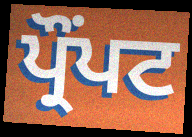
ਪ੍ਰੌੰਪਟ